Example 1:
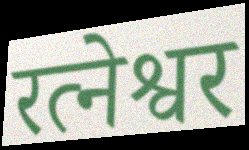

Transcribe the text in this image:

रत्नेश्वर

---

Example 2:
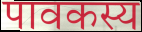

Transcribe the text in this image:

पावकस्य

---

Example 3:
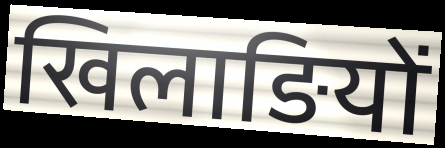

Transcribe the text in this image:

खिलाङियों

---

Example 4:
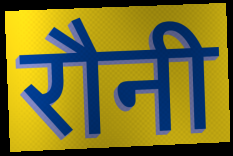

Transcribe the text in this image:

रौनी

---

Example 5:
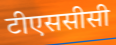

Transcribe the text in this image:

टीएससीसी